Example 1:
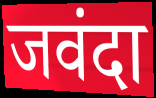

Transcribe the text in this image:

जवंदा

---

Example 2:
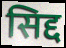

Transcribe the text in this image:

सिद्द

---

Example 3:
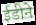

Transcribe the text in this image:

ईडीने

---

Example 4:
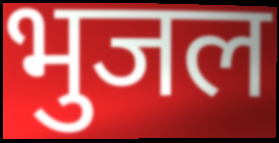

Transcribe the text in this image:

भुजल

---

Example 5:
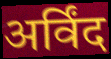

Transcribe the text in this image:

अर्विंद